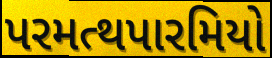
પરમત્થપારમિયો